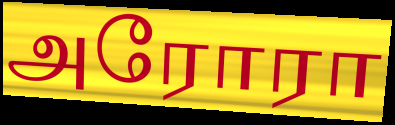
அரோரா